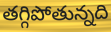
తగ్గిపోతున్నది